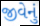
જીવેનું